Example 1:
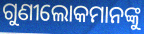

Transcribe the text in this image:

ଗୁଣୀଲୋକମାନଙ୍କୁ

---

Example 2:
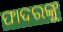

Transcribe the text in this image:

ଫାଦରଙ୍କୁ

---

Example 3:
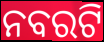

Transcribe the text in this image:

ନବରଟି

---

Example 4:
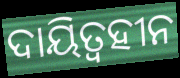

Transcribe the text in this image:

ଦାୟିତ୍ଵହୀନ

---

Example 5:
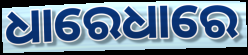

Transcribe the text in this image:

ଧାରେଧାରେ